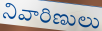
నివారిణులు